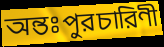
অন্তঃপুরচারিণী